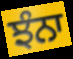
ਝੰਨਾ